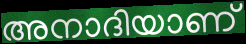
അനാദിയാണ്